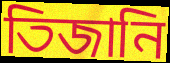
তিজানি